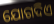
ଯୋଗଦିଏ